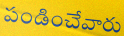
పండించేవారు